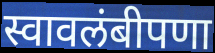
स्वावलंबीपणा